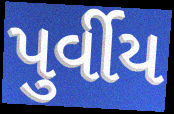
પુર્વીય